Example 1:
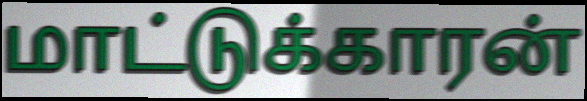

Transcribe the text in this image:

மாட்டுக்காரன்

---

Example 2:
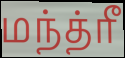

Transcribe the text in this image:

மந்த்ரீ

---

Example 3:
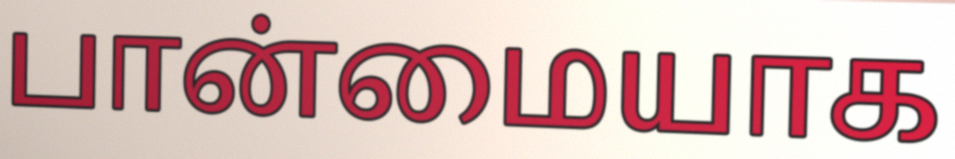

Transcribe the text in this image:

பான்மையாக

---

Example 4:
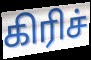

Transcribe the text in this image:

கிரிச்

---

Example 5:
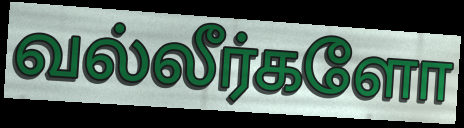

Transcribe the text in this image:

வல்லீர்களோ